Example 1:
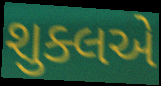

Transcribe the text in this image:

શુક્લએ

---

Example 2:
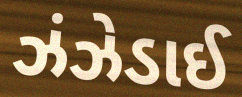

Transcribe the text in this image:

ઝંઝેડાઈ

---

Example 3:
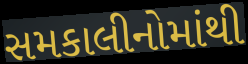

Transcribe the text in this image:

સમકાલીનોમાંથી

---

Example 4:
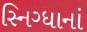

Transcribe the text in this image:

સ્નિગ્ધાનાં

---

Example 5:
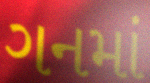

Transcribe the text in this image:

ગનમાં